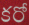
కరో